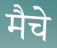
मैचे